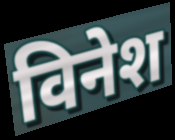
विनेश